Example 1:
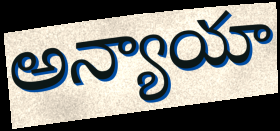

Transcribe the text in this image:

అన్యాయా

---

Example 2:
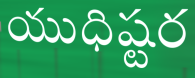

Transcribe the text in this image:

యుధిష్టర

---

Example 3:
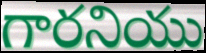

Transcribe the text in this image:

గారనియు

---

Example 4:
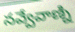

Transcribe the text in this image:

నవ్వేవాణ్ని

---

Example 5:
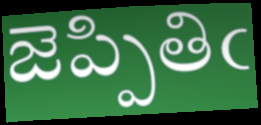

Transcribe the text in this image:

జెప్పితిఁ